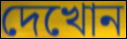
দেখোন